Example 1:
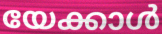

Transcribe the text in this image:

യേക്കാൾ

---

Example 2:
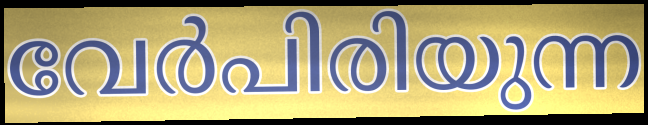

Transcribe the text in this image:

വേർപിരിയുന്ന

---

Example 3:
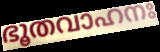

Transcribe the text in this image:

ഭൂതവാഹനഃ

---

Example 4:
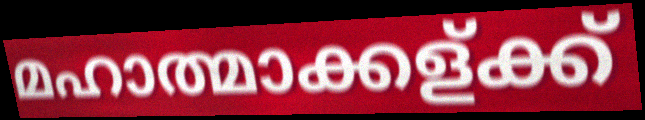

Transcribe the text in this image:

മഹാത്മാക്കള്ക്ക്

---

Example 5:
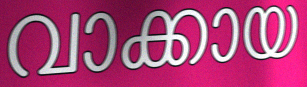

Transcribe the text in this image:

വാക്കായ